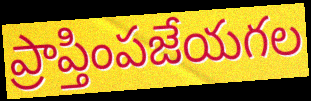
ప్రాప్తింపజేయగల